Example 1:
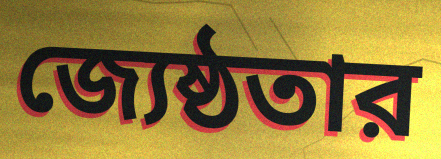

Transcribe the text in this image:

জ্যেষ্ঠতার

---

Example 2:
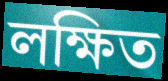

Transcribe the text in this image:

লক্ষিত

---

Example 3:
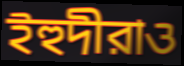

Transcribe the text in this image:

ইহুদীরাও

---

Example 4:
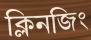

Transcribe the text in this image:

ক্লিনজিং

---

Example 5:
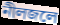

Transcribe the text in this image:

নীলজলে